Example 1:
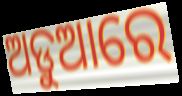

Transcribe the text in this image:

ଅଡୁଆରେ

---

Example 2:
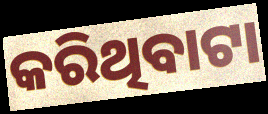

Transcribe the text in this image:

କରିଥିବାଟା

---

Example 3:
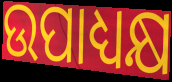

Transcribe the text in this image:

ଉପାଧ୍ୟକ୍ଷ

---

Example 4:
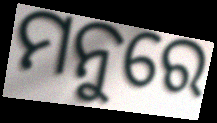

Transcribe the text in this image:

ମନୁରେ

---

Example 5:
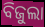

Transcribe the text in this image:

ବିଜୁଲା